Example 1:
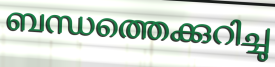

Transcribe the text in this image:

ബന്ധത്തെക്കുറിച്ചു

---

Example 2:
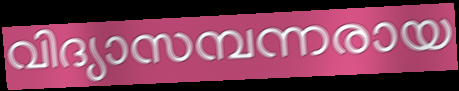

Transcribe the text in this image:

വിദ്യാസമ്പന്നരായ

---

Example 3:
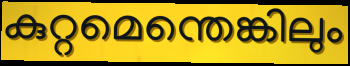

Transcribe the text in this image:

കുറ്റമെന്തെങ്കിലും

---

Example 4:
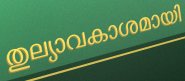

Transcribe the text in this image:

തുല്യാവകാശമായി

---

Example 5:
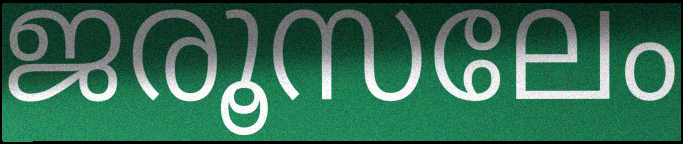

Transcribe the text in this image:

ജരൂസലേം